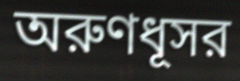
অরুণধূসর